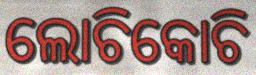
ଲୋଚିକୋଚି